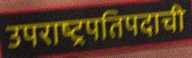
उपराष्ट्रपतिपदाची